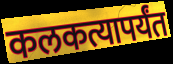
कलकत्यापर्यंत